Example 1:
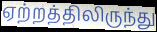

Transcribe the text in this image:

ஏற்றத்திலிருந்து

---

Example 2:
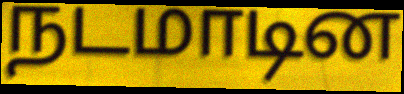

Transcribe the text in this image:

நடமாடின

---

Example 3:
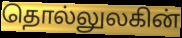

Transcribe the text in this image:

தொல்லுலகின்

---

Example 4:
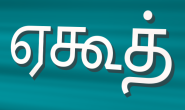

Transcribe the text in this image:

ஏகூத்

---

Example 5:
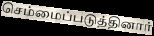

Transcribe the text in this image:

செம்மைப்படுத்தினார்